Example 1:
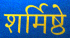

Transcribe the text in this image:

शर्मिष्ठे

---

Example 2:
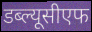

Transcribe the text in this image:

डब्ल्यूसीएफ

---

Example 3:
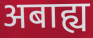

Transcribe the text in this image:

अबाह्य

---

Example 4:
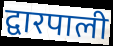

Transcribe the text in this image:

द्वारपाली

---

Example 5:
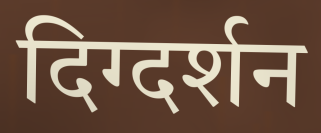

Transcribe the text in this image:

दिग्दर्शन